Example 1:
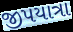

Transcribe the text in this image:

જીપયાત્રા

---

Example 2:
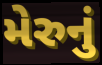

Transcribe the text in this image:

મેરુનું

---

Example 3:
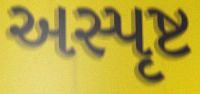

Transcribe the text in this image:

અસ્પૃષ્ટ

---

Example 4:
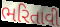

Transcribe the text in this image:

ભરિતાવી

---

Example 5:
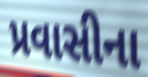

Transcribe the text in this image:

પ્રવાસીના